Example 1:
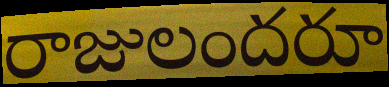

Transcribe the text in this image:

రాజులందరూ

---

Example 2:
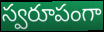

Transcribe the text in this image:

స్వరూపంగా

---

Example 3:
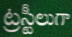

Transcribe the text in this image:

ట్రస్టీలుగా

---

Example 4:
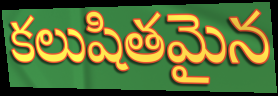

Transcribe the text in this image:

కలుషితమైన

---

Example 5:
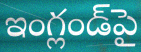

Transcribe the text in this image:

ఇంగ్లండ్‌పై